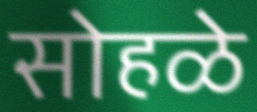
सोहळे